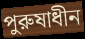
পুরুষাধীন